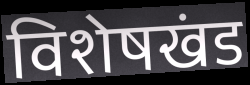
विशेषखंड